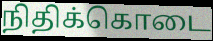
நிதிக்கொடை